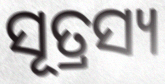
ସୂତ୍ରସ୍ୟ